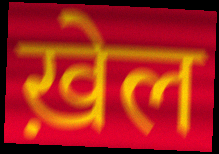
ख़ेल